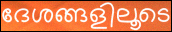
ദേശങ്ങളിലൂടെ